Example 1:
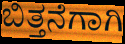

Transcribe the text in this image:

ಬಿತ್ತನೆಗಾಗಿ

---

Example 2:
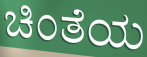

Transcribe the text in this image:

ಚಿಂತೆಯ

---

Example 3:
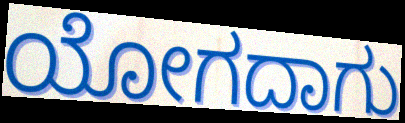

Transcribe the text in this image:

ಯೋಗದಾಗು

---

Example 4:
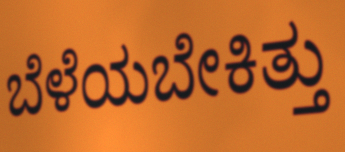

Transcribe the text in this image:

ಬೆಳೆಯಬೇಕಿತ್ತು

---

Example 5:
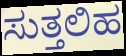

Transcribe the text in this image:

ಸುತ್ತಲಿಹ